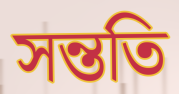
সন্ততি